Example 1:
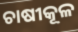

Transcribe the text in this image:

ଚାଷୀକୂଳ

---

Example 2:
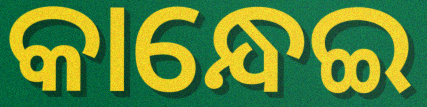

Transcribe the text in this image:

କାନ୍ଧେଇ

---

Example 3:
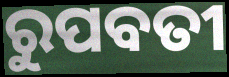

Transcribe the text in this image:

ରୁପବତୀ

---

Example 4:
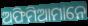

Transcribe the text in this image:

ଅଫିମିଆମାନେ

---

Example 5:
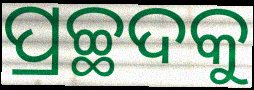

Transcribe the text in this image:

ପ୍ରଚ୍ଛଦକୁ